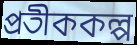
প্রতীককল্প